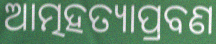
ଆତ୍ମହତ୍ୟାପ୍ରବଣ